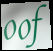
oof